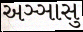
અઞ્ઞાસુ